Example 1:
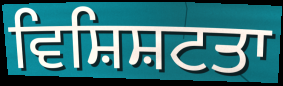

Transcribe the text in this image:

ਵਿਸ਼ਿਸ਼ਟਤਾ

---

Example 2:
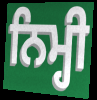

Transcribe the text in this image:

ਨਿਮ੍ਹੀ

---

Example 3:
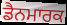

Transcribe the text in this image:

ਡੈਨਮਾਰਕ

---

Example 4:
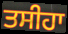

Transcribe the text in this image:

ਤਸੀਹਾ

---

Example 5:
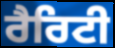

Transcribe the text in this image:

ਰੈਰਿਟੀ